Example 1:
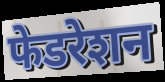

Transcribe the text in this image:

फेडरेशन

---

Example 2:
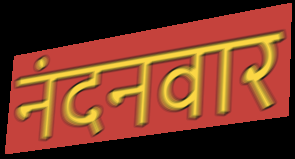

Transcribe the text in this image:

नंदनवार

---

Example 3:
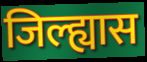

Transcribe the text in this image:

जिल्ह्यास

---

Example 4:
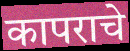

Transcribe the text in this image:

कापराचे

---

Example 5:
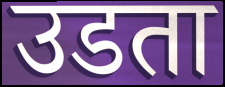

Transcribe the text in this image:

उडता